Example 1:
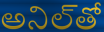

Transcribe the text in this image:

అనిల్‌తో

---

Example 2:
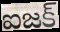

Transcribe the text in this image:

ఐజక్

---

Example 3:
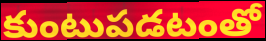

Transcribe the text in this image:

కుంటుపడటంతో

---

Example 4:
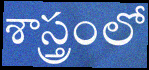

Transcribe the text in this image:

శాస్త్రంలో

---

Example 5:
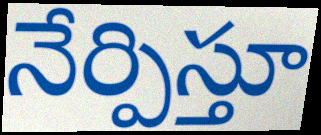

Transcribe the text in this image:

నేర్పిస్తూ